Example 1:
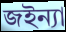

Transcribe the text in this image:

জইন্যা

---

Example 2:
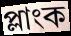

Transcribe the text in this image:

প্লাংক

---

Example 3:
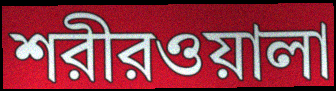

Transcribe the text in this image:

শরীরওয়ালা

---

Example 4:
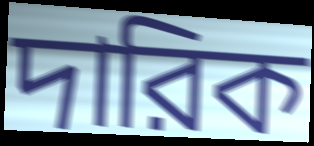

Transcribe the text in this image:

দারিক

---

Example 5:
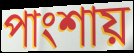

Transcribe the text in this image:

পাংশায়